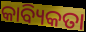
କାବ୍ୟିକତା